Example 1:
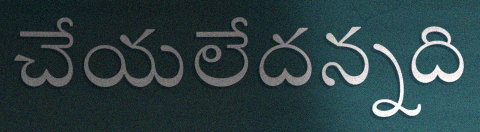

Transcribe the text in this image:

చేయలేదన్నది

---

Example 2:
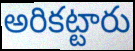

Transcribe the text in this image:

అరికట్టారు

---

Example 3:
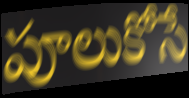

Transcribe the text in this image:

పూలుకోసే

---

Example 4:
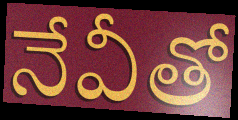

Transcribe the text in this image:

నేవీతో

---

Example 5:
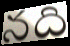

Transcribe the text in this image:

నది